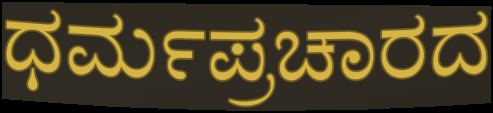
ಧರ್ಮಪ್ರಚಾರದ